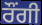
ਰੌਂਗੀ